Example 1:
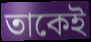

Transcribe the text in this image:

তাকেই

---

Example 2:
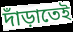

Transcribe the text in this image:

দাঁড়াতেই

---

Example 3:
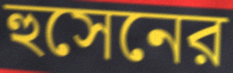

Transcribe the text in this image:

হুসেনের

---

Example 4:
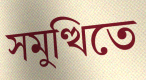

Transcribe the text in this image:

সমুত্থিতে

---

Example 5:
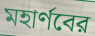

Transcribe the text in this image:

মহার্ণবের